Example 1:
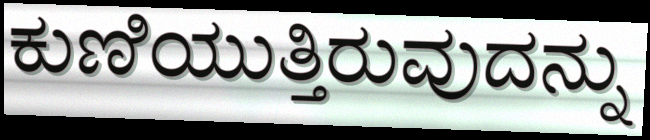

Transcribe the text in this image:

ಕುಣಿಯುತ್ತಿರುವುದನ್ನು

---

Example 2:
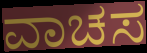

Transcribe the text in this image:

ವಾಚಸ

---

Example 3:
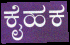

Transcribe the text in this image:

ಕೈಹಕ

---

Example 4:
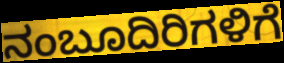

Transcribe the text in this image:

ನಂಬೂದಿರಿಗಳಿಗೆ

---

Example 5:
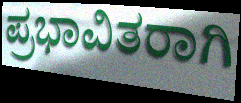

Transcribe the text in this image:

ಪ್ರಭಾವಿತರಾಗಿ